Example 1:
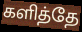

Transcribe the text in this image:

களித்தே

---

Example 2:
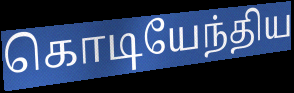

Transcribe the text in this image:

கொடியேந்திய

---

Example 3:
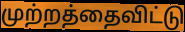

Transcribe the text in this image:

முற்றத்தைவிட்டு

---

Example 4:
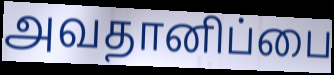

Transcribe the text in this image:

அவதானிப்பை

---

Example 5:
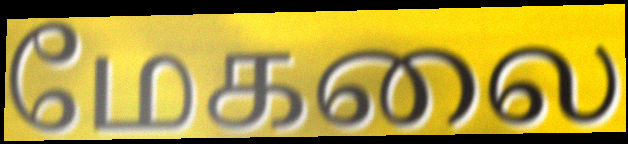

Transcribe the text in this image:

மேகலை